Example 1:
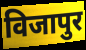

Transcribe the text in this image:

विजापुर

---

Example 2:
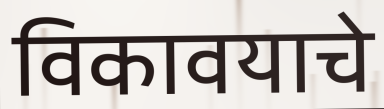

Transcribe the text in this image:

विकावयाचे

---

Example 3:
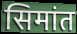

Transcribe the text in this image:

सिमांत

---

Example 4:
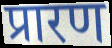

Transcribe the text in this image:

प्रारण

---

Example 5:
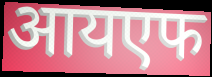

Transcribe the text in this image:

आयएफ